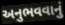
અનુભવવાનું